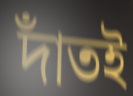
দাঁতই